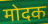
मोदक